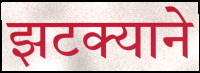
झटक्याने